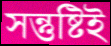
সন্তুষ্টিই